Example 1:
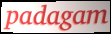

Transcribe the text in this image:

padagam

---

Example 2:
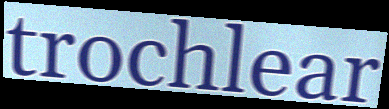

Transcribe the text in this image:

trochlear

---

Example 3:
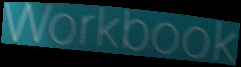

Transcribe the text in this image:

Workbook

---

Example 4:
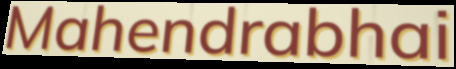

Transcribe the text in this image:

Mahendrabhai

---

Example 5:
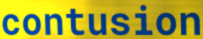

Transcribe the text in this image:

contusion